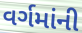
વર્ગમાંની